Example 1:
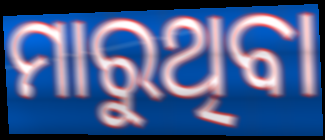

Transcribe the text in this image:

ମାରୁଥିବା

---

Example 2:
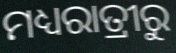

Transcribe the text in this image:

ମଧ୍ୟରାତ୍ରୀରୁ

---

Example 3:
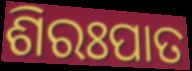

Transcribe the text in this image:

ଶିରଃପାତ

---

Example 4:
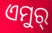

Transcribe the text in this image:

ଏମୁର୍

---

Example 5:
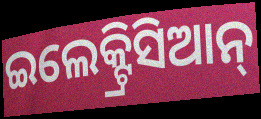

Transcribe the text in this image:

ଇଲେକ୍ଟ୍ରିସିଆନ୍